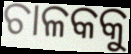
ଚାଳକକୁ